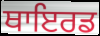
ਥਾਇਰਡ